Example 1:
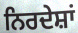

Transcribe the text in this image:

ਨਿਰਦੇਸ਼ਾਂ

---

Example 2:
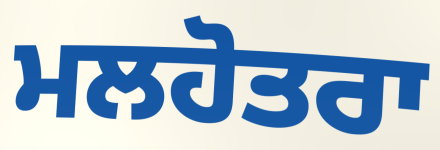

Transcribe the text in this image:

ਮਲਹੋਤਰਾ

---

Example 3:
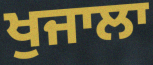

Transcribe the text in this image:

ਖੁਜਾਲਾ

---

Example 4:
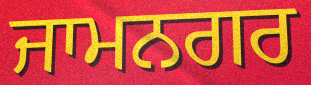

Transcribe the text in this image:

ਜਾਮਨਗਰ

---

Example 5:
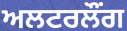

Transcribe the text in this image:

ਅਲਟਰਲੌਂਗ